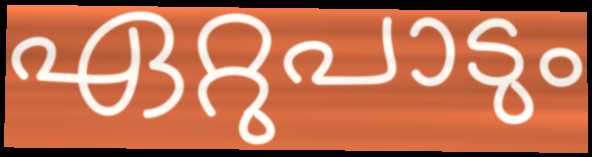
ഏറ്റുപാടും